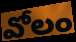
వోలం